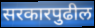
सरकारपुढील